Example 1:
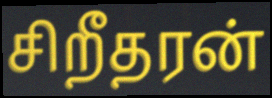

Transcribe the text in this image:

சிறீதரன்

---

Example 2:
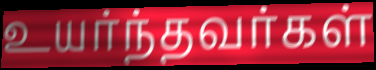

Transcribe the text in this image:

உயர்ந்தவர்கள்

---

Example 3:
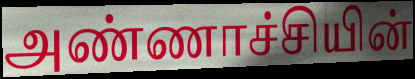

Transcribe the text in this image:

அண்ணாச்சியின்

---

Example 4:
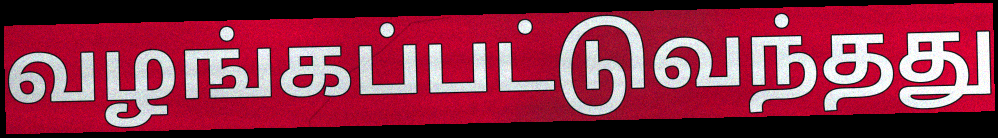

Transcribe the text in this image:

வழங்கப்பட்டுவந்தது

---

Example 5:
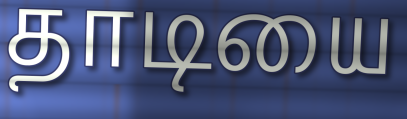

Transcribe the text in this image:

தாடியை